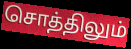
சொத்திலும்